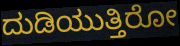
ದುಡಿಯುತ್ತಿರೋ